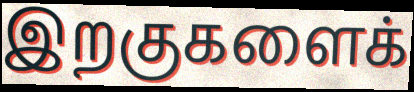
இறகுகளைக்